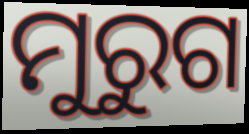
ମୁରୁଗ